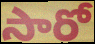
సారో